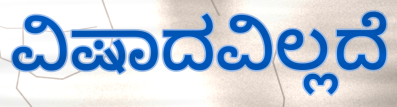
ವಿಷಾದವಿಲ್ಲದೆ